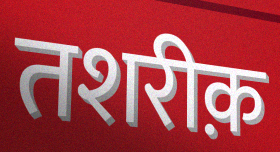
तशरीक़